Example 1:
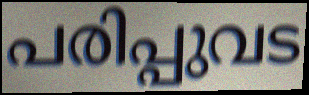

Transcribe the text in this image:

പരിപ്പുവട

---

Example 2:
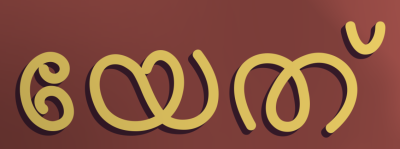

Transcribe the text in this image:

യേത്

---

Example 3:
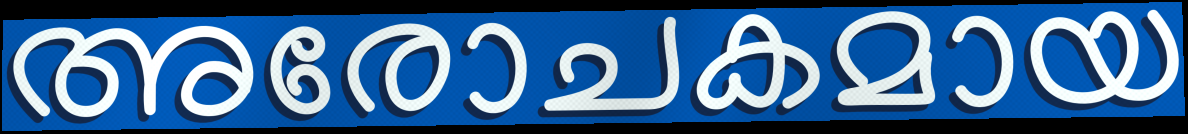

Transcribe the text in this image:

അരോചകമായ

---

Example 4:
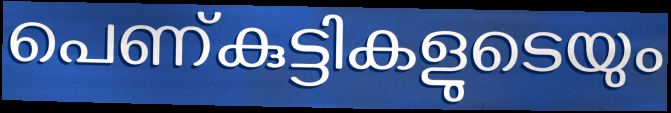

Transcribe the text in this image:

പെണ്കുട്ടികളുടെയും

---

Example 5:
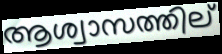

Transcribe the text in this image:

ആശ്വാസത്തില്